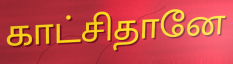
காட்சிதானே